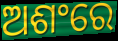
ଅଶଂରେ